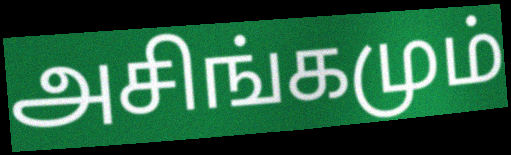
அசிங்கமும்